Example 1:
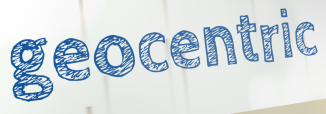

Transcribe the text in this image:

geocentric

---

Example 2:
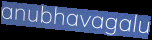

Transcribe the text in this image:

anubhavagalu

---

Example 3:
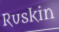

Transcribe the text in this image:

Ruskin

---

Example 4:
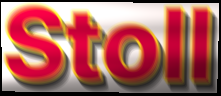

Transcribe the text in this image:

Stoll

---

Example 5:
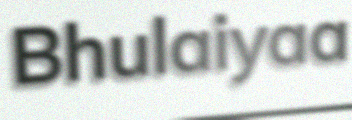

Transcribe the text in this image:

Bhulaiyaa